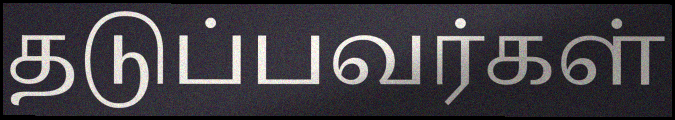
தடுப்பவர்கள்